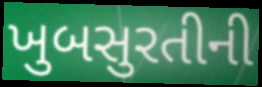
ખુબસુરતીની